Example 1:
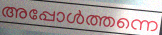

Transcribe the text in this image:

അപ്പോൾത്തന്നെ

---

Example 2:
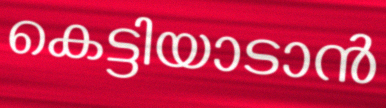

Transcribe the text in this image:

കെട്ടിയാടാൻ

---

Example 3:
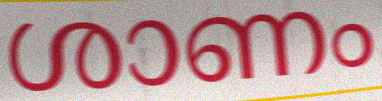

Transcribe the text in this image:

ശാണം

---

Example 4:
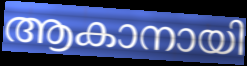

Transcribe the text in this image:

ആകാനായി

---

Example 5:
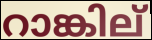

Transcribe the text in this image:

റാങ്കില്